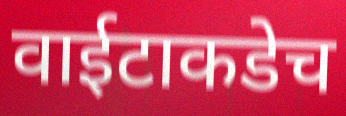
वाईटाकडेच